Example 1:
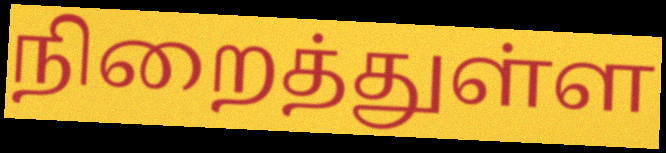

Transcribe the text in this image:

நிறைத்துள்ள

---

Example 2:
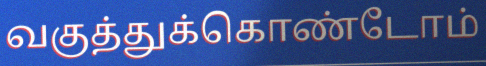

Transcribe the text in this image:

வகுத்துக்கொண்டோம்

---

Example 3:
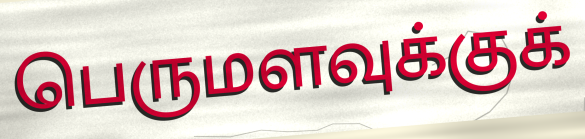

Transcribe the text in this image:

பெருமளவுக்குக்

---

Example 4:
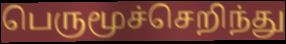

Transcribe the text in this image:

பெருமூச்செறிந்து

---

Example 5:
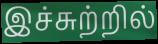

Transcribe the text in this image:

இச்சுற்றில்